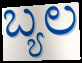
ಬ್ಯಲ